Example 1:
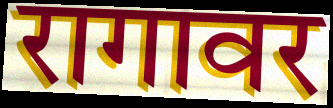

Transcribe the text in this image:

रागावर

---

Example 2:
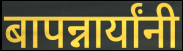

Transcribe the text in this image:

बापन्नार्यांनी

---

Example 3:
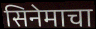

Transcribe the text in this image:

सिनेमाचा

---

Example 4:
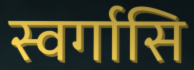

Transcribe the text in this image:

स्वर्गासि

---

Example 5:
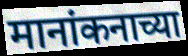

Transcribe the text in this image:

मानांकनाच्या